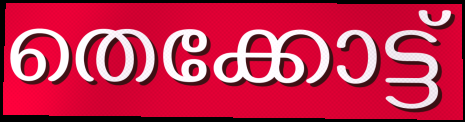
തെക്കോട്ട്